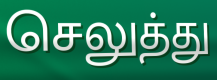
செலுத்து